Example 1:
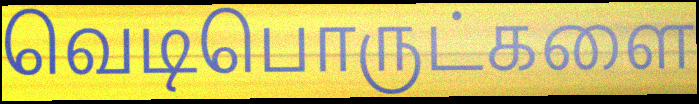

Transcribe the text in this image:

வெடிபொருட்களை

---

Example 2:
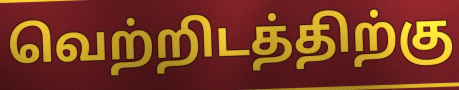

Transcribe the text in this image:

வெற்றிடத்திற்கு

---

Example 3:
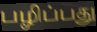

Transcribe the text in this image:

பழிப்பது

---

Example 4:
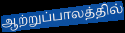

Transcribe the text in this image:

ஆற்றுப்பாலத்தில்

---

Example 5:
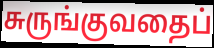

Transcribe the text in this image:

சுருங்குவதைப்